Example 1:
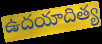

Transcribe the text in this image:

ఉదయాదిత్య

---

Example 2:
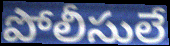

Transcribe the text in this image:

పోలీసులే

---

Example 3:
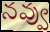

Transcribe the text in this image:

నవ్వు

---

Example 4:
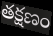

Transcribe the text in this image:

తక్షణం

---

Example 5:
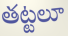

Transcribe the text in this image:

తట్టలూ